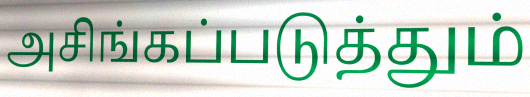
அசிங்கப்படுத்தும்